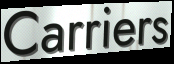
Carriers